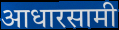
आधारसामी